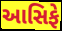
આસિફે